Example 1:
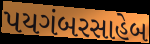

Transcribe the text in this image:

પયગંબરસાહેબ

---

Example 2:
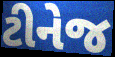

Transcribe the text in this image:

ટીનેજ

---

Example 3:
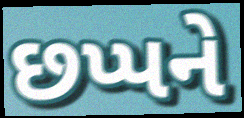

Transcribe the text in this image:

છપ્પને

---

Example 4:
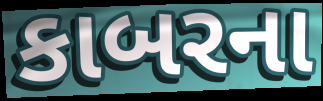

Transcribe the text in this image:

કાબરના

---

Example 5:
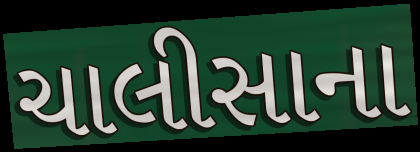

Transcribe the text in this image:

ચાલીસાના